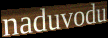
naduvodu